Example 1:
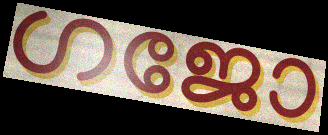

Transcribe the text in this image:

ഗജോ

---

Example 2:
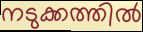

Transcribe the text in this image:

നടുക്കത്തിൽ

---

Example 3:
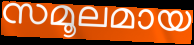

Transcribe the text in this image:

സമൂലമായ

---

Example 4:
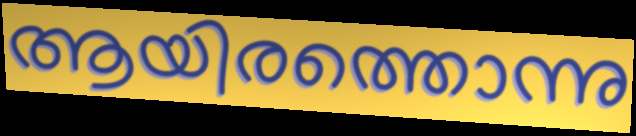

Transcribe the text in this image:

ആയിരത്തൊന്നു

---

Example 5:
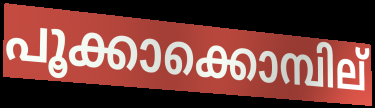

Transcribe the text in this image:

പൂക്കാക്കൊമ്പില്